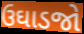
ઉઘાડજો